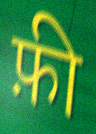
फ़ी